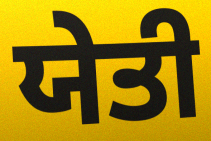
ਯੇਤੀ